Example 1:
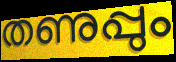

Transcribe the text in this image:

തണുപ്പും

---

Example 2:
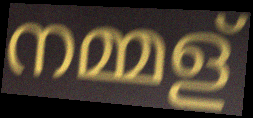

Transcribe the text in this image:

നമ്മള്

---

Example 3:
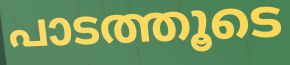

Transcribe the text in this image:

പാടത്തൂടെ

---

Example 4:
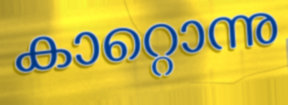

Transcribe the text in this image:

കാറ്റൊന്നു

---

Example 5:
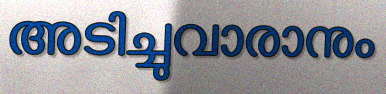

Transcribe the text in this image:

അടിച്ചുവാരാനും